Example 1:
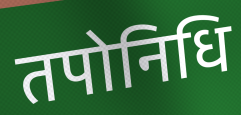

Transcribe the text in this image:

तपोनिधि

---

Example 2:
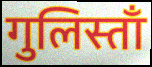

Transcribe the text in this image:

गुलिस्ताँ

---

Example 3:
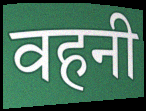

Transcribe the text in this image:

वहनी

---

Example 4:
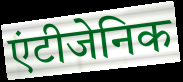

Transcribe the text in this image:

एंटीजेनिक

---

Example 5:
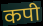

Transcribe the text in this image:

कपी